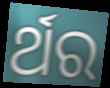
ର୍ଥର